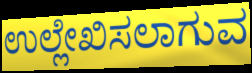
ಉಲ್ಲೇಖಿಸಲಾಗುವ